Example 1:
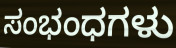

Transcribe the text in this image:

ಸಂಭಂಧಗಳು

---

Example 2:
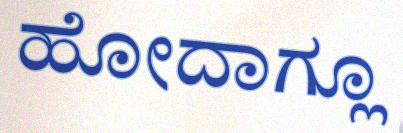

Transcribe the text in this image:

ಹೋದಾಗ್ಲೂ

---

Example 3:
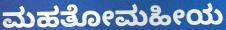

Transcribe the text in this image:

ಮಹತೋಮಹೀಯ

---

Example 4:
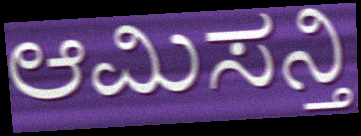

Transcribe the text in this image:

ಆಮಿಸನ್ತಿ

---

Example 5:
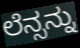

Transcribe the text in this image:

ಲೆನ್ಸನ್ನು